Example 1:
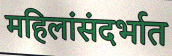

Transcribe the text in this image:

महिलांसंदर्भात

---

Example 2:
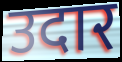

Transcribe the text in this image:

उदार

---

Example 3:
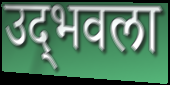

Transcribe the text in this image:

उद्‌भवला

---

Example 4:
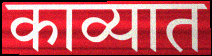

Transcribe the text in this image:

काव्यात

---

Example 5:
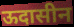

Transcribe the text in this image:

ऊदासीन